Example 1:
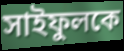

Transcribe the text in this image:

সাইফুলকে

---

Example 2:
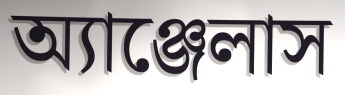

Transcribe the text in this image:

অ্যাঞ্জেলাস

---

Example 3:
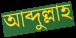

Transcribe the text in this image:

আব্দুল্লাহ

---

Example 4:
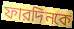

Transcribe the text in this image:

ফারদিনকে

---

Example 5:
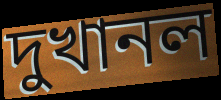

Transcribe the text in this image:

দুখানল